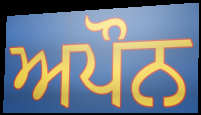
ਅਪੌਨ